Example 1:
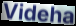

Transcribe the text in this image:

Videha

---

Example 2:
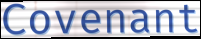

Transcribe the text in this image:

Covenant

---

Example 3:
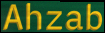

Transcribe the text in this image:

Ahzab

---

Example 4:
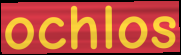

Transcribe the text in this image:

ochlos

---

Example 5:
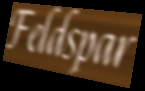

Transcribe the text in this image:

Feldspar